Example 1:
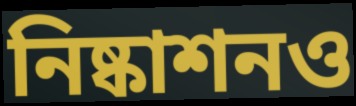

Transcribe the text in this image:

নিষ্কাশনও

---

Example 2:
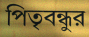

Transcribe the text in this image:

পিতৃবন্ধুর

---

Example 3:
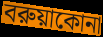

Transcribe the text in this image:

বরুয়াকোনা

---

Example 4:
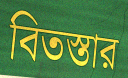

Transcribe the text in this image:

বিতস্তার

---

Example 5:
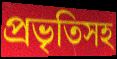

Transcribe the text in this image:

প্রভৃতিসহ